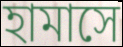
হামাসে